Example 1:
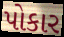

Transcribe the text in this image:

પોકાર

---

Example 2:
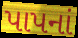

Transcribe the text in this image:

પાપનાં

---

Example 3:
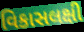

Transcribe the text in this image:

વિકાસલક્ષી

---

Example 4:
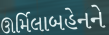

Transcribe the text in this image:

ઊર્મિલાબહેનને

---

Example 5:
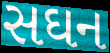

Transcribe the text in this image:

સઘન